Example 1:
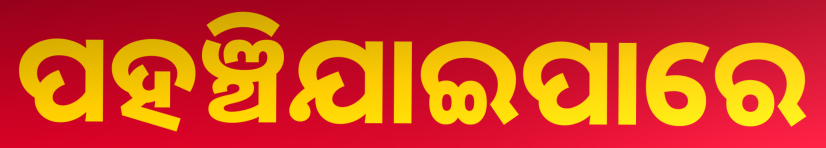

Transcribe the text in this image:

ପହଞ୍ଚିଯାଇପାରେ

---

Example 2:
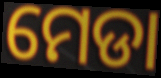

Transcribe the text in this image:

ମେଡା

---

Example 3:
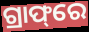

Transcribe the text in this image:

ଗ୍ରାଫ୍‌ରେ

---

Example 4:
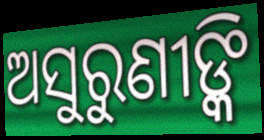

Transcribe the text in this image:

ଅସୁରୁଣୀଙ୍କି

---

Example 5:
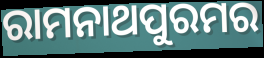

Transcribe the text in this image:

ରାମନାଥପୁରମର